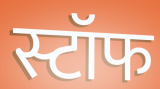
स्‍टॉफ